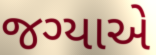
જગ્યાએ